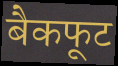
बैकफूट